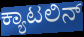
ಕ್ಯಾಟಲಿನ್